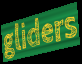
gliders